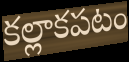
కల్లాకపటం